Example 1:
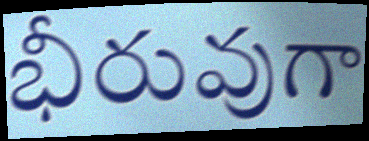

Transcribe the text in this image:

భీరువుగా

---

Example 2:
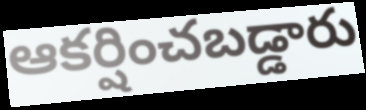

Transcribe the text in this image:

ఆకర్షించబడ్డారు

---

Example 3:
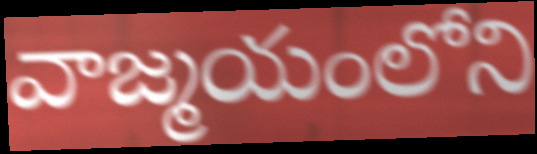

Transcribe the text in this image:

వాజ్మయంలోని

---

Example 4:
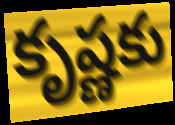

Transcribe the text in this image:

కృష్ణకు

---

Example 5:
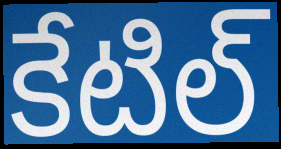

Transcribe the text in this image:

కేటిల్